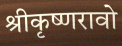
श्रीकृष्णरावो